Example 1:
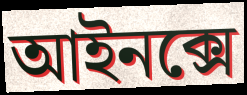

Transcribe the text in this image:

আইনক্সে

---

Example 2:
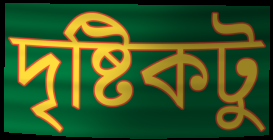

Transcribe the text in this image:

দৃষ্টিকটু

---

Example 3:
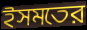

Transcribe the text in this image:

ইসমতের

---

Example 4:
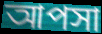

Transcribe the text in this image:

আপসা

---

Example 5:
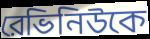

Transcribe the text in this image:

রেভিনিউকে